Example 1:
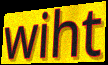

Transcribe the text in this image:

wiht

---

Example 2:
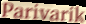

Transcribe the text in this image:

Parivarik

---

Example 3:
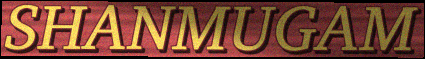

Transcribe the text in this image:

SHANMUGAM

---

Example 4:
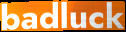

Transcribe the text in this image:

badluck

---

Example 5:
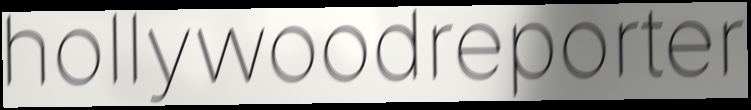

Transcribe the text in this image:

hollywoodreporter